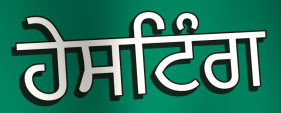
ਹੇਸਟਿੰਗ